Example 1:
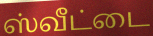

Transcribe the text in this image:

ஸ்வீட்டை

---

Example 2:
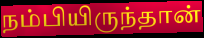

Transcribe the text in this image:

நம்பியிருந்தான்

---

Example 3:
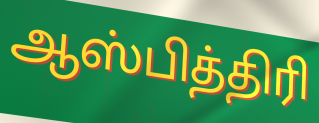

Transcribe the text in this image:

ஆஸ்பித்திரி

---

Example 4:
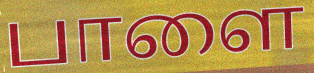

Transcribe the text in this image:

பாளை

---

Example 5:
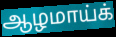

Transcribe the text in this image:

ஆழமாய்க்